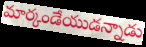
మార్కండేయుడన్నాడు